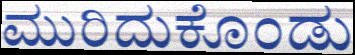
ಮುರಿದುಕೊಂಡು